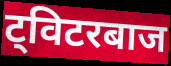
ट्विटरबाज